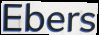
Ebers